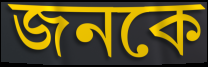
জনকে